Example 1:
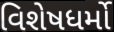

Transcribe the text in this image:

વિશેષધર્મો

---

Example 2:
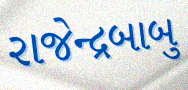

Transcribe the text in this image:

રાજેન્દ્રબાબુ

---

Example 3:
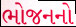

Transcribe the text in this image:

ભોજનનો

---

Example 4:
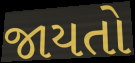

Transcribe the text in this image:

જાયતો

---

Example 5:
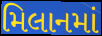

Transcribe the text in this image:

મિલાનમાં